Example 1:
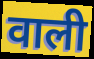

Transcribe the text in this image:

वाली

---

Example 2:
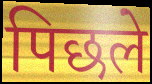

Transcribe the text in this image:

पिछले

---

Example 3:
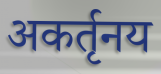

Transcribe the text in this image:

अकर्तृनय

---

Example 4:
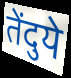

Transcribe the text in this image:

तेंदुये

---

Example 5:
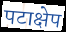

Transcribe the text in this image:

पटाक्षेप